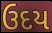
ઉદય